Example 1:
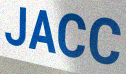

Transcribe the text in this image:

JACC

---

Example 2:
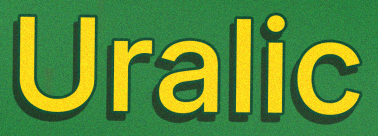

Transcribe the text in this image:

Uralic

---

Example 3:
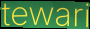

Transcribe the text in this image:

tewari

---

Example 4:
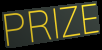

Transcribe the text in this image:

PRIZE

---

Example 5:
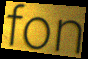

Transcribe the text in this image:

fon